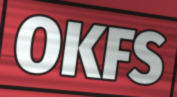
OKFS